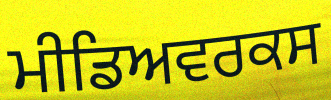
ਮੀਡਿਅਵਰਕਸ